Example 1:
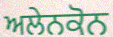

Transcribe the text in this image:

ਅਲੇਨਕੋਨ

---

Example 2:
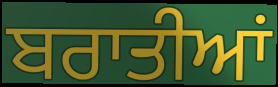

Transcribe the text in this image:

ਬਰਾਤੀਆਂ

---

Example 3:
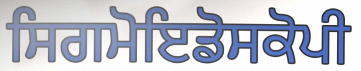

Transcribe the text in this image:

ਸਿਗਮੋਇਡੋਸਕੋਪੀ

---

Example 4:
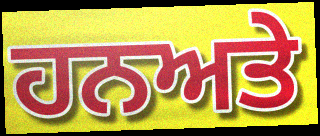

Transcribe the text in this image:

ਹਨਅਤੇ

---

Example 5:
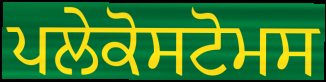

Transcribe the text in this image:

ਪਲੇਕੋਸਟੋਮਸ